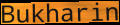
Bukharin